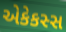
એકેકસ્સ